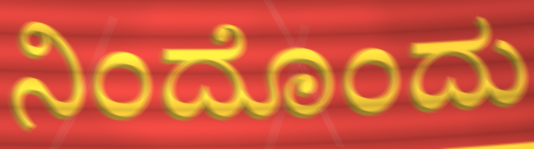
ನಿಂದೊಂದು